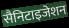
सैनिटाइजेशन